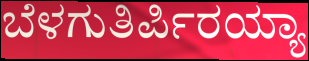
ಬೆಳಗುತಿರ್ಪಿರಯ್ಯಾ